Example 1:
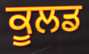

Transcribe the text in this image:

ਕੂਲਡ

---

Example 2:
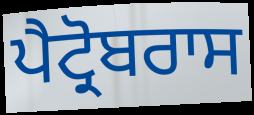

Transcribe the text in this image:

ਪੈਟ੍ਰੋਬਰਾਸ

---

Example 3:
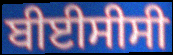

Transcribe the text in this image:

ਬੀਈਸੀਸੀ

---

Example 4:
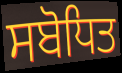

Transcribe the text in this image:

ਸਬੋਧਿਤ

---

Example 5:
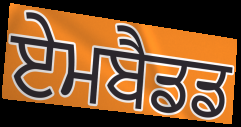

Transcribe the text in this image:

ਏਮਬੈਡਡ